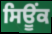
ਸਿਊਂਕ